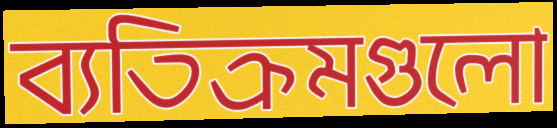
ব্যতিক্রমগুলো